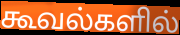
கூவல்களில்